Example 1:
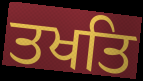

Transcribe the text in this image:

ਤਖਤਿ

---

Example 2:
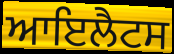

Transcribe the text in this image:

ਆਇਲੈਟਸ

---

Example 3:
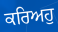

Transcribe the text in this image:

ਕਰਿਅਹੁ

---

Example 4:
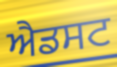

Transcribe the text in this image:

ਐਡਸਟ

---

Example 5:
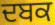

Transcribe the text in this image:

ਦਬਕ